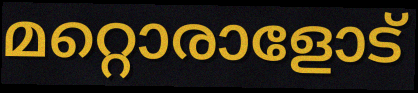
മറ്റൊരാളോട്